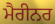
ਮੈਰੀਨਰ